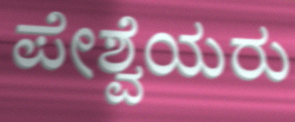
ಪೇಶ್ವೆಯರು